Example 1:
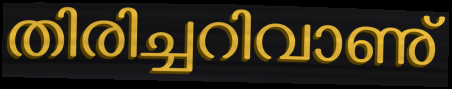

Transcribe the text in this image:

തിരിച്ചറിവാണു്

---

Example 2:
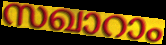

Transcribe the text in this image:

സഖാറാം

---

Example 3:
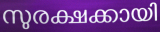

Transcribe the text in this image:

സുരക്ഷക്കായി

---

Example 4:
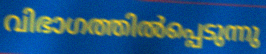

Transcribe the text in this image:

വിഭാഗത്തിൽപ്പെടുന്നു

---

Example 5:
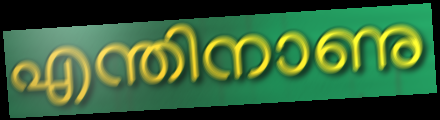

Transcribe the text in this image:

എന്തിനാണു